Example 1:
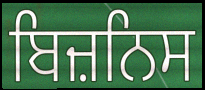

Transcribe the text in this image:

ਬਿਜ਼ਨਿਸ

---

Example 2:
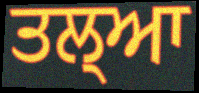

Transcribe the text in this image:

ਤਲ੍ਆ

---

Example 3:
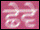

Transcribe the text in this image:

ਛੇਵੇ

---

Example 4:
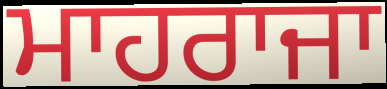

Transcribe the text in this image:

ਮਾਹਰਾਜਾ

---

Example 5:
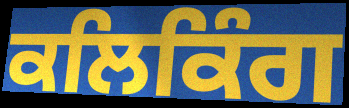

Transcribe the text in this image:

ਕਲਿਕਿੰਗ